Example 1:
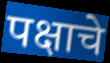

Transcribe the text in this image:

पक्षाचे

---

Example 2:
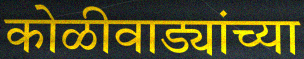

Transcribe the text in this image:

कोळीवाड्यांच्या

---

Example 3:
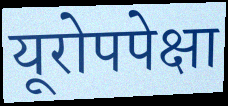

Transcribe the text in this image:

यूरोपपेक्षा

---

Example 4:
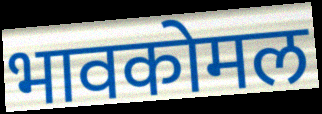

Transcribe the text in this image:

भावकोमल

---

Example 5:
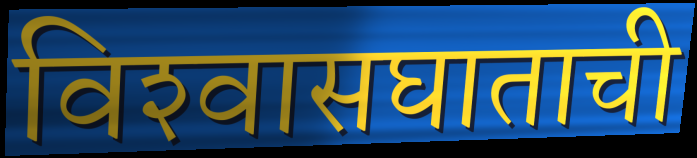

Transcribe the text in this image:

विश्वासघाताची